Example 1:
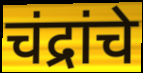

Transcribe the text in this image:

चंद्रांचे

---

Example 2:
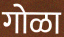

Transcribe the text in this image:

गोळा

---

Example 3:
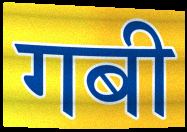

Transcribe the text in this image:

गबी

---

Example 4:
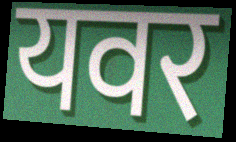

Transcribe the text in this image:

यवर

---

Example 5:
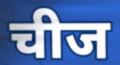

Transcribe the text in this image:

चीज